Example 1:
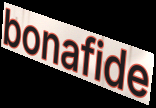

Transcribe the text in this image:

bonafide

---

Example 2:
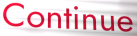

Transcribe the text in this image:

Continue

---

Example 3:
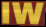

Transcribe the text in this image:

IW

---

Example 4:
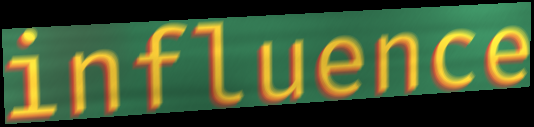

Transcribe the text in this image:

influence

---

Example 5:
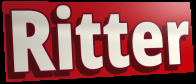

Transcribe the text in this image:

Ritter